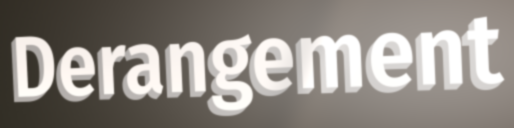
Derangement